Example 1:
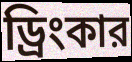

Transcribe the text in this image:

ড্রিংকার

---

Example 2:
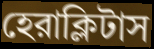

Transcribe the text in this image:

হেরাক্লিটাস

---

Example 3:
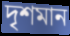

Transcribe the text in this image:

দৃশমান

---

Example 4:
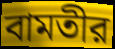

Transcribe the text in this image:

বামতীর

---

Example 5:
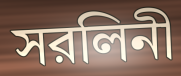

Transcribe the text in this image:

সরলিনী